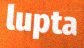
lupta